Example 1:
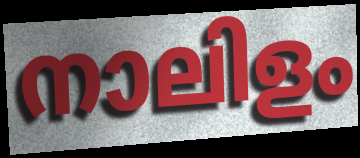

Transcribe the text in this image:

നാലിളം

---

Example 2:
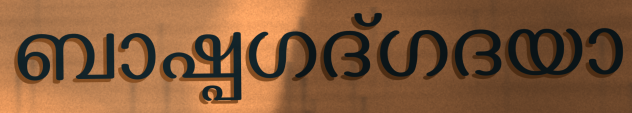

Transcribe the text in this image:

ബാഷ്പഗദ്ഗദയാ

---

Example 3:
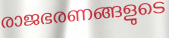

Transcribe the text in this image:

രാജഭരണങ്ങളുടെ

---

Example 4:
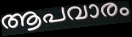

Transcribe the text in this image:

ആപവാരം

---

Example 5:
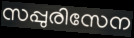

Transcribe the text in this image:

സപ്പുരിസേന